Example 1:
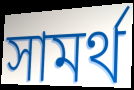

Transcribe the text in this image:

সামৰ্থ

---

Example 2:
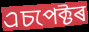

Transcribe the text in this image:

এচপেক্টৰ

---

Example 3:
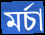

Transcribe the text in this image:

মৰ্চা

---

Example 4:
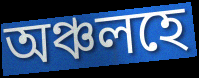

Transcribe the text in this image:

অঞ্চলহে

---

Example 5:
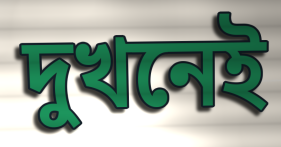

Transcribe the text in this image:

দুখনেই